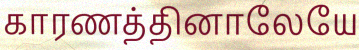
காரணத்தினாலேயே